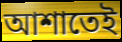
আশাতেই